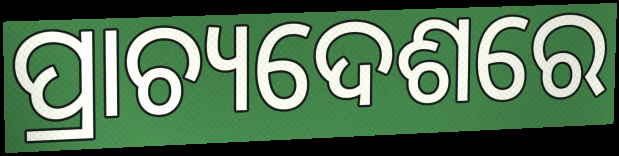
ପ୍ରାଚ୍ୟଦେଶରେ